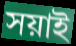
সয়াই